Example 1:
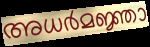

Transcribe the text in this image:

അധർമജ്ഞാ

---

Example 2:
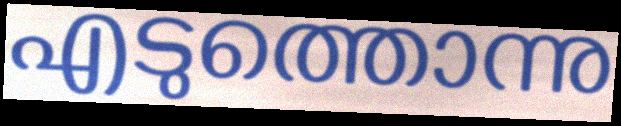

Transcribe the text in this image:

എടുത്തൊന്നു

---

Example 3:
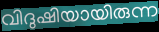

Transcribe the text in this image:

വിദുഷിയായിരുന്ന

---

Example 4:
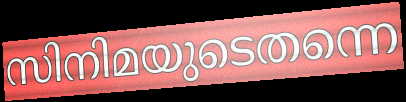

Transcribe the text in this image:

സിനിമയുടെതന്നെ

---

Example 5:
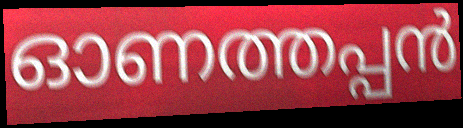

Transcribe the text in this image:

ഓണത്തപ്പൻ